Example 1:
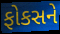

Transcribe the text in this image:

ફોકસને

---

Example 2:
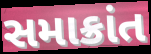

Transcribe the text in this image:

સમાક્રાંત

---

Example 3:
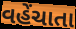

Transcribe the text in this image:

વહેંચાતા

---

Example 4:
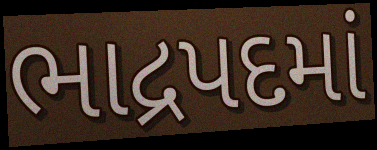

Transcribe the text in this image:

ભાદ્રપદમાં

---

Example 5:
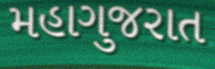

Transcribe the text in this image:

મહાગુજરાત